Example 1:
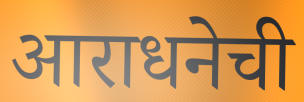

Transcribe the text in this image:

आराधनेची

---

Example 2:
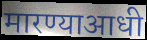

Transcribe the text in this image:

मारण्याआधी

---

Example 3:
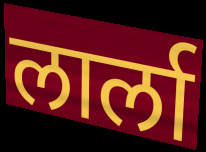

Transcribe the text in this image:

लार्ला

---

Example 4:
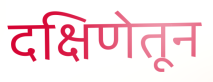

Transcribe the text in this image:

दक्षिणेतून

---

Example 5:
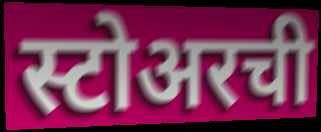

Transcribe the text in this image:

स्टोअरची